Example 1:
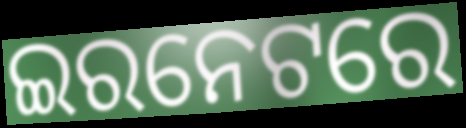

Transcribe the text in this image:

ଇରନେଟରେ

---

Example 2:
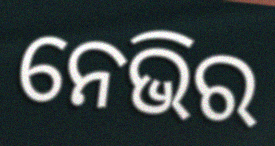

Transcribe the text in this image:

ନେଭିର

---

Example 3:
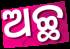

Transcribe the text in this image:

ଅଚ୍ଛ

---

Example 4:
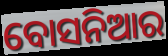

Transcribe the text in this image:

ବୋସନିଆର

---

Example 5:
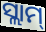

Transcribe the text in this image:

ସ୍ଲାମ୍